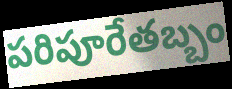
పరిపూరేతబ్బం